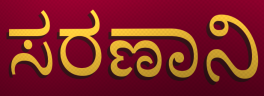
ಸರಣಾನಿ